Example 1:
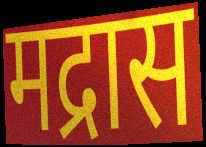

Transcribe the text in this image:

मद्रास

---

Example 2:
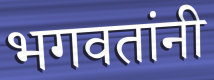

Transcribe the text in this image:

भगवतांनी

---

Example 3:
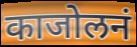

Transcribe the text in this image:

काजोलनं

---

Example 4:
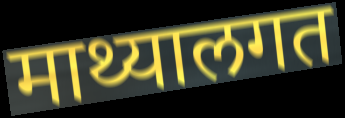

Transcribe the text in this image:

माथ्यालगत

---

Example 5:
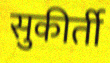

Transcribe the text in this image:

सुकीर्ती